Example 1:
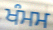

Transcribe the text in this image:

ਖੰਮਮ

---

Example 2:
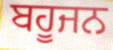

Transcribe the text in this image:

ਬਹੂਜਨ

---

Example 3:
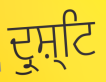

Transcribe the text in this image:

ਦ੍ਰੁਸ਼੍ਟਿ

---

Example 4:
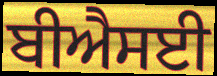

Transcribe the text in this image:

ਬੀਐਸਈ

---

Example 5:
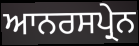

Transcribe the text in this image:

ਆਨਰਸਪ੍ਰੇਨ